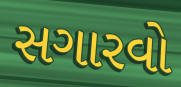
સગારવો